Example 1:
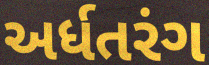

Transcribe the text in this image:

અર્ધતરંગ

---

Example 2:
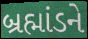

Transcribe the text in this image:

બ્રહ્માંડને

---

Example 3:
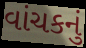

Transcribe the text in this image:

વાંચકનું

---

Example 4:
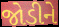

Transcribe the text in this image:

જોડીને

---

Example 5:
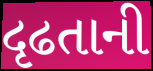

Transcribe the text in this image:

દૃઢતાની